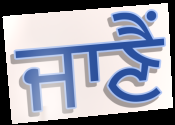
ਜਾਣੈਂ